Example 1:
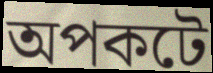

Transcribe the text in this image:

অপকটে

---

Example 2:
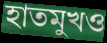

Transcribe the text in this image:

হাতমুখও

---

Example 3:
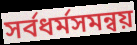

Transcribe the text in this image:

সর্বধর্মসমন্বয়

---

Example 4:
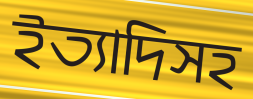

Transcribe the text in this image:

ইত্যাদিসহ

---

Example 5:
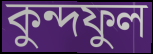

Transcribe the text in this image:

কুন্দফুল